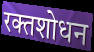
रक्तशोधन